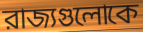
রাজ্যগুলোকে